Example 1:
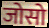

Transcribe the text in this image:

जोसो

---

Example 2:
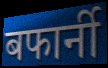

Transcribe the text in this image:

बफार्नी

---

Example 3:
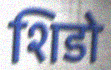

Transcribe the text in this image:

शिडो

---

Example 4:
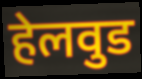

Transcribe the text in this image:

हेलवुड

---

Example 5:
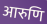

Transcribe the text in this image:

आरुणि